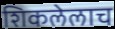
शिकलेलाच